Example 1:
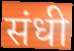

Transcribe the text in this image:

संधी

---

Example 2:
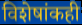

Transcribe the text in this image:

विशेषांकही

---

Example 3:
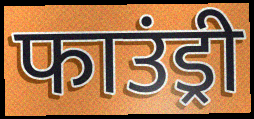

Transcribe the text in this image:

फाउंड्री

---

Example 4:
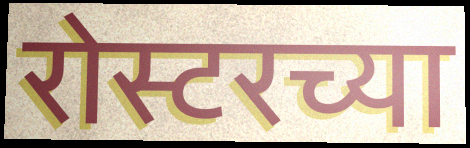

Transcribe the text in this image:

रोस्टरच्या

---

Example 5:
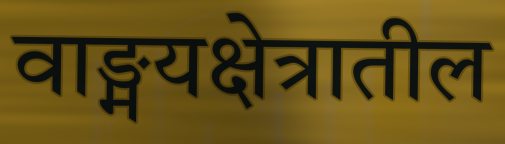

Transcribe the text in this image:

वाङ्मयक्षेत्रातील